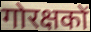
गोरक्षकों